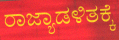
ರಾಜ್ಯಾಡಳಿತಕ್ಕೆ